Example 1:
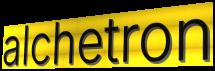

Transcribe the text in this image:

alchetron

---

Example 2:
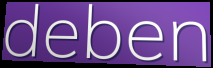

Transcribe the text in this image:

deben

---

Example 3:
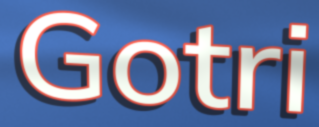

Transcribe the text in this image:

Gotri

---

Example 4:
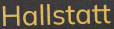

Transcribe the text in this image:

Hallstatt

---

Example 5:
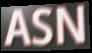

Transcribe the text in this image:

ASN